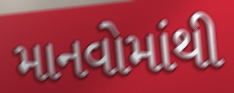
માનવોમાંથી